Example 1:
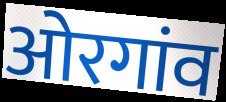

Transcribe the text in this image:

ओरगांव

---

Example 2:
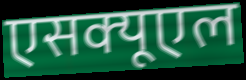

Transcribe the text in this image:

एसक्यूएल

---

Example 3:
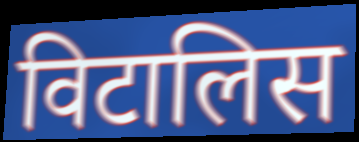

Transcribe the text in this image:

विटालिस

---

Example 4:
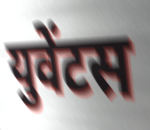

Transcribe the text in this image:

युवेंटस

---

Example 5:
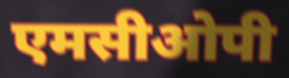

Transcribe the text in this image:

एमसीओपी